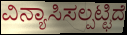
ವಿನ್ಯಾಸಿಸಲ್ಪಟ್ಟಿದೆ